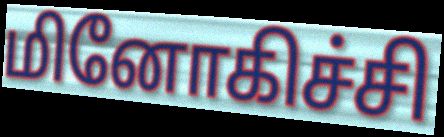
மினோகிச்சி